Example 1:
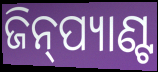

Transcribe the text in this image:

ଜିନ୍‍ପ୍ୟାଣ୍ଟ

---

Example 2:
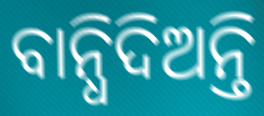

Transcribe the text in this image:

ବାନ୍ଧିଦିଅନ୍ତି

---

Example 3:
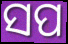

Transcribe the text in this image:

ସପ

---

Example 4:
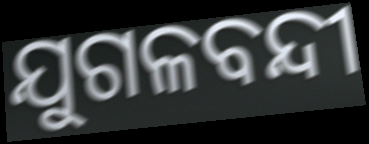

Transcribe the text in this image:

ଯୁଗଳବନ୍ଦୀ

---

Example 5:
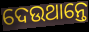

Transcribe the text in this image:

ଦେଉଥାନ୍ତେ